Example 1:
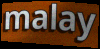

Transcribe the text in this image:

malay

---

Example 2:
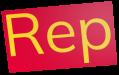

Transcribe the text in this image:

Rep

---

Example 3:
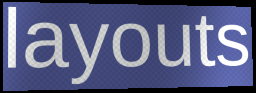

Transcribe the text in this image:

layouts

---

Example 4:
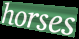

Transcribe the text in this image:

horses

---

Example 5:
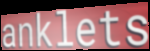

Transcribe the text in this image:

anklets